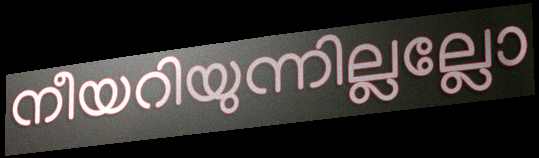
നീയറിയുന്നില്ലല്ലോ